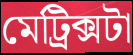
মেট্রিক্সটা